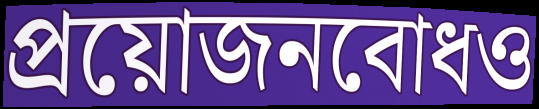
প্রয়োজনবোধও